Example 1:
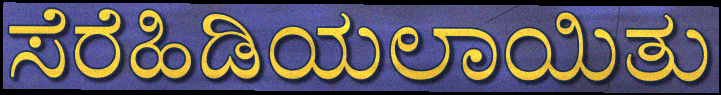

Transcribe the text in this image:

ಸೆರೆಹಿಡಿಯಲಾಯಿತು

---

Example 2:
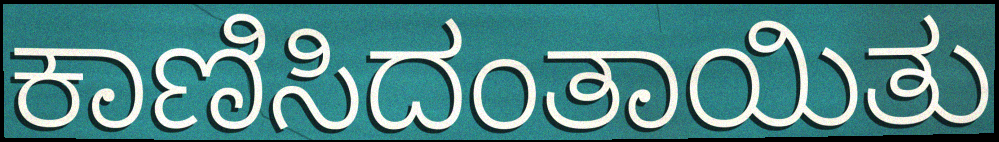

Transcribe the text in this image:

ಕಾಣಿಸಿದಂತಾಯಿತು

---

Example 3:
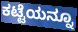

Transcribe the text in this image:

ಕಟ್ಟೆಯನ್ನೂ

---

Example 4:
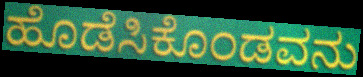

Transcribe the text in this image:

ಹೊಡೆಸಿಕೊಂಡವನು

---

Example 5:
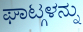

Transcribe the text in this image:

ಘಾಟ್ಗಳನ್ನು